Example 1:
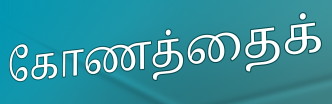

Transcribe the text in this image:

கோணத்தைக்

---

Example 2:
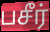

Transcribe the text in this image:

பசீர்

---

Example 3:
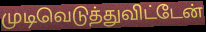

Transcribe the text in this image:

முடிவெடுத்துவிட்டேன்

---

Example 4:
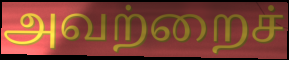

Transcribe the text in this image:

அவற்றைச்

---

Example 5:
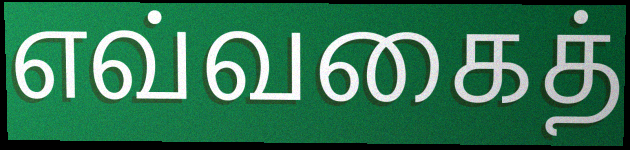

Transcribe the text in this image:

எவ்வகைத்